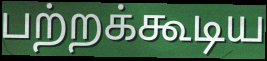
பற்றக்கூடிய